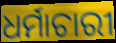
ଧର୍ମାଚାରୀ